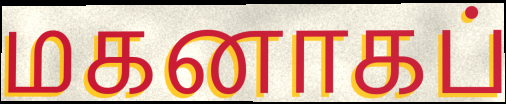
மகனாகப்